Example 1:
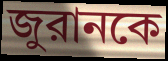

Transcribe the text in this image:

জুরানকে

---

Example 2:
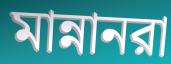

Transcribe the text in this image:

মান্নানরা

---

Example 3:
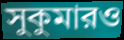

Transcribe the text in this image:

সুকুমারও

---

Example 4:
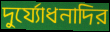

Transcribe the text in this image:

দুর্য্যোধনাদির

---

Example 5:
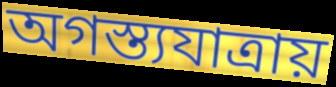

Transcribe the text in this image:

অগস্ত্যযাত্রায়